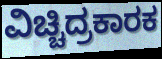
ವಿಚ್ಚಿದ್ರಕಾರಕ